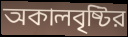
অকালবৃষ্টির